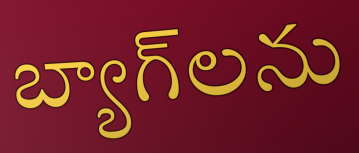
బ్యాగ్‌లను